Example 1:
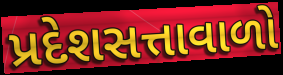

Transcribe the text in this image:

પ્રદેશસત્તાવાળો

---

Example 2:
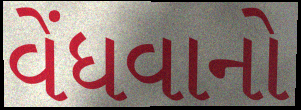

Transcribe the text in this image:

વેંધવાનો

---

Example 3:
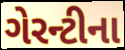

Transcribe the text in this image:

ગેરન્ટીના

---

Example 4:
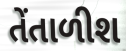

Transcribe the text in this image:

તેંતાળીશ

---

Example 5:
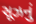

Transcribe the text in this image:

સૂઝનું